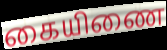
கையிணை